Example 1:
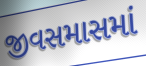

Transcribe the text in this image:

જીવસમાસમાં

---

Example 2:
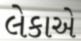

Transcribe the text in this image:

લેકાએ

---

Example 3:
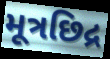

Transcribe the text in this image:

મૂત્રછિદ્ર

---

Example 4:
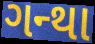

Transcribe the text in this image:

ગન્થા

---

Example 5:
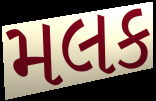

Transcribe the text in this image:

મલક